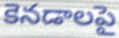
కెనడాలపై